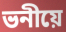
ভনীয়ে